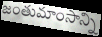
జంతుమాంసాన్ని